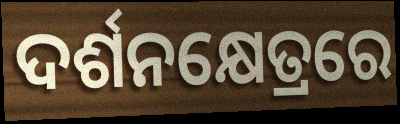
ଦର୍ଶନକ୍ଷେତ୍ରରେ